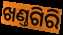
ଖଣ୍ତଗିରି